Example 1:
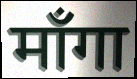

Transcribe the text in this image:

माँगा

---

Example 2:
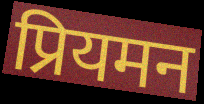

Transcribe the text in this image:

प्रियमन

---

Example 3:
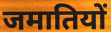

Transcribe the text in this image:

जमातियों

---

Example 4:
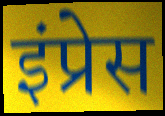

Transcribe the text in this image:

इंप्रेस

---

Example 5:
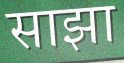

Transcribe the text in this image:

साझा